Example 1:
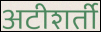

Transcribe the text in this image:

अटीशर्ती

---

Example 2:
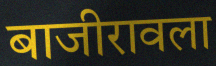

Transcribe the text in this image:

बाजीरावला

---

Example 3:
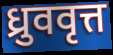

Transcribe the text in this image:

ध्रुववृत्त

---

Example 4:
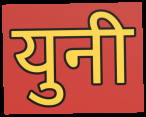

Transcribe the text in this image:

युनी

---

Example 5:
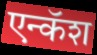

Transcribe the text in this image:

एन्कॅश